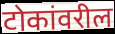
टोकांवरील